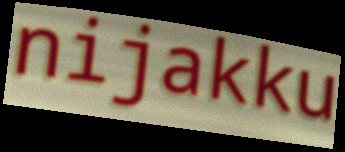
nijakku